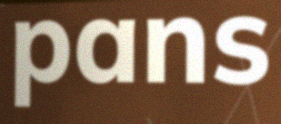
pans